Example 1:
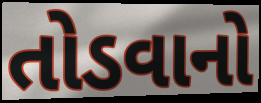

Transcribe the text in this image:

તોડવાનો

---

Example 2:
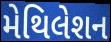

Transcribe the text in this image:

મેથિલેશન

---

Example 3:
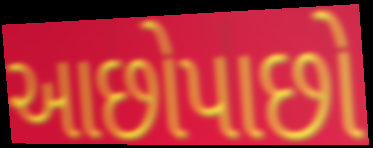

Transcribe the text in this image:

આછોપાછો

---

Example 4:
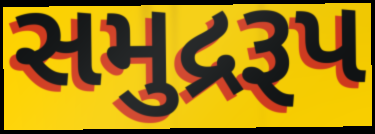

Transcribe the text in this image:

સમુદ્રરૂપ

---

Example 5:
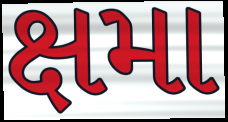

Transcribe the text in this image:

ક્ષમા